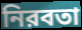
নিরবতা